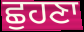
ਛੁਹਣਾ